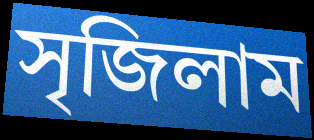
সৃজিলাম